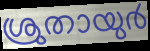
ശ്രുതായുർ